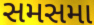
સમસમા